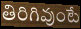
తిరిగివుంటే